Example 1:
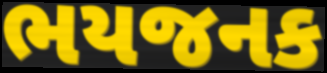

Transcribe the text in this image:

ભયજનક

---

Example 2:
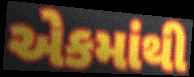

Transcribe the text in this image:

એકમાંથી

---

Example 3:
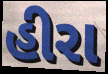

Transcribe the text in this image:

હીરા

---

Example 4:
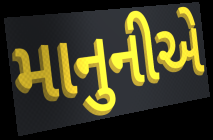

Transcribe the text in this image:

માનુનીએ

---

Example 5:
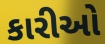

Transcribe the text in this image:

કારીઓ